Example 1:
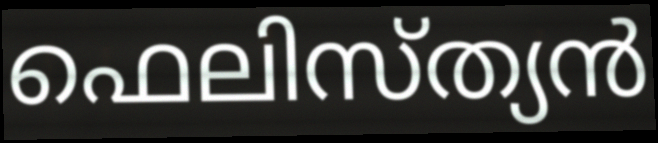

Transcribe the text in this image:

ഫെലിസ്ത്യൻ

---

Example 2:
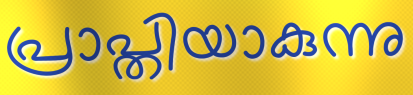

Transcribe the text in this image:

പ്രാപ്തിയാകുന്നു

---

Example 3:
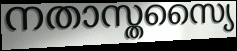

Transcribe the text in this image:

നതാസ്തസ്യൈ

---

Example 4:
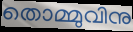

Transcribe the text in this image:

തൊമ്മുവിനു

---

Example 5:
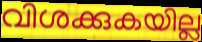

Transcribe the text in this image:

വിശക്കുകയില്ല